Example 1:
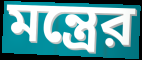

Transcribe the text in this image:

মন্ত্রের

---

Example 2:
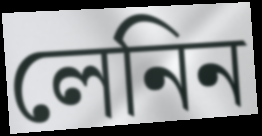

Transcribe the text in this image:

লেনিন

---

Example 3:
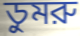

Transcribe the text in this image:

ডুমরু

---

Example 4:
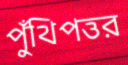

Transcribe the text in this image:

পুঁথিপত্তর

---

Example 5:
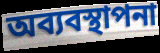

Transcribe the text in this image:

অব্যবস্থাপনা